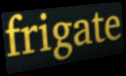
frigate